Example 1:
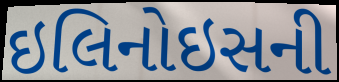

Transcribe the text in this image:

ઇલિનોઇસની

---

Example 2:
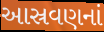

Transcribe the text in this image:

આસ્રવણનાં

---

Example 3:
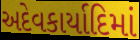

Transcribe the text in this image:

અદેવકાર્યાદિમાં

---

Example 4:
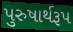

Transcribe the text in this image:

પુરુષાર્થરૂપ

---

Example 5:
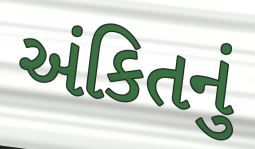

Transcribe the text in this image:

અંકિતનું